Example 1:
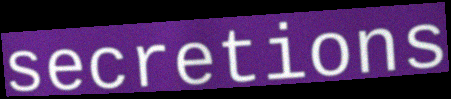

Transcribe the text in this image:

secretions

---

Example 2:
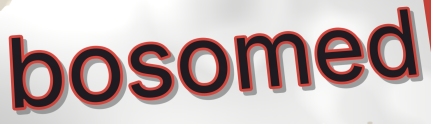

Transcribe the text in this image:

bosomed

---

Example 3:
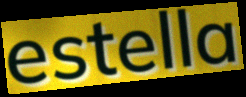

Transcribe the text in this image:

estella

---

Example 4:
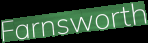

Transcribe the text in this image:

Farnsworth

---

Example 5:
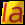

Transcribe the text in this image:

Ia